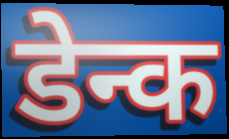
डेन्क